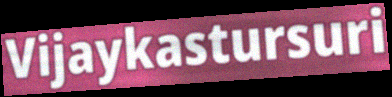
Vijaykastursuri